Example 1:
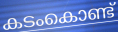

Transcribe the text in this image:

കടംകൊണ്ട്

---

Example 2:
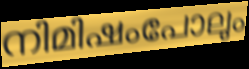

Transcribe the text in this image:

നിമിഷംപോലും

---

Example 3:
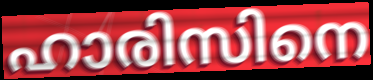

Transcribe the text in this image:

ഹാരിസിനെ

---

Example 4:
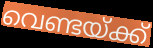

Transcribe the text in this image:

വെണ്ടയ്ക്ക്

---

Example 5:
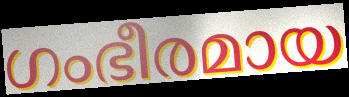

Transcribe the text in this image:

ഗംഭീരമായ